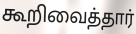
கூறிவைத்தார்